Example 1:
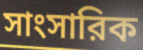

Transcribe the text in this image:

সাংসারিক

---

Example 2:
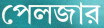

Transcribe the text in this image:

পেলজার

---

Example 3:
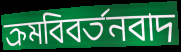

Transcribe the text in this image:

ক্রমবিবর্তনবাদ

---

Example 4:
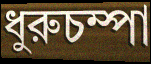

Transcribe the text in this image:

ধুরুচম্পা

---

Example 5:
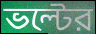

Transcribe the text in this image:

ভল্টের